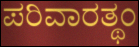
ಪರಿವಾರತ್ಥಂ